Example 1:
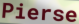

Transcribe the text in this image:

Pierse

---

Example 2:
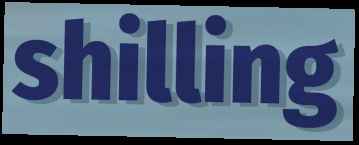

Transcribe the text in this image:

shilling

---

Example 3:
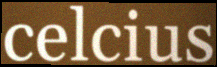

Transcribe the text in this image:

celcius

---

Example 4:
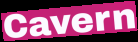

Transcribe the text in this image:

Cavern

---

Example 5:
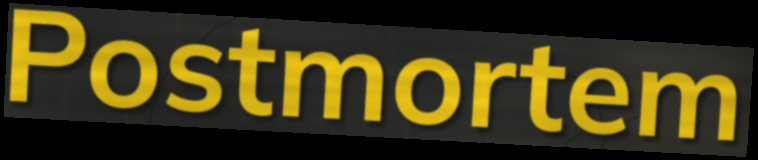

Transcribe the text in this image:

Postmortem